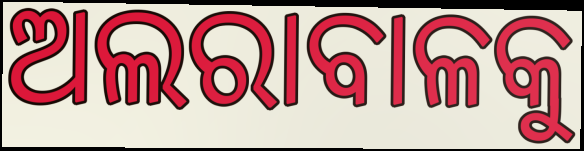
ଅଲରାବାଳକୁ